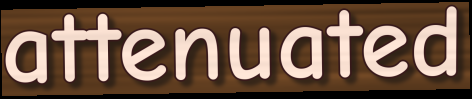
attenuated